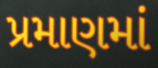
પ્રમાણમાં